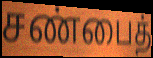
சண்பைத்